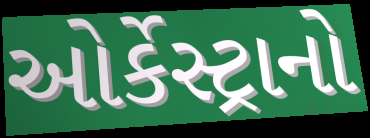
ઓર્કેસ્ટ્રાનો